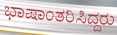
ಭಾಷಾಂತರಿಸಿದ್ದರು